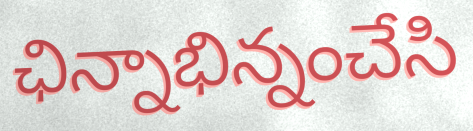
ఛిన్నాభిన్నంచేసి